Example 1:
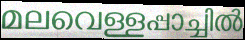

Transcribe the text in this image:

മലവെള്ളപ്പാച്ചിൽ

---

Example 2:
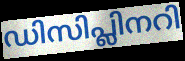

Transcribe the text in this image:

ഡിസിപ്ലിനറി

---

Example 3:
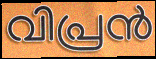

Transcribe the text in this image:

വിപ്രൻ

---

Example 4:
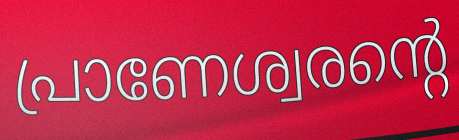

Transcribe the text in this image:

പ്രാണേശ്വരന്റെ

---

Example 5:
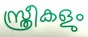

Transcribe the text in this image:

സ്ത്രീകളും